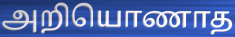
அறியொணாத